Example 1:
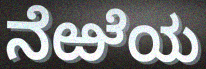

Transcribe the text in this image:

ನೆಱೆಯ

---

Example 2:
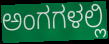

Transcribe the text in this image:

ಅಂಗಗಳಲ್ಲಿ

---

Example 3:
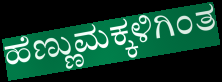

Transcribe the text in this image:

ಹೆಣ್ಣುಮಕ್ಕಳಿಗಿಂತ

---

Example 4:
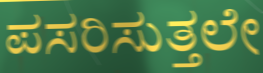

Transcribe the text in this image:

ಪಸರಿಸುತ್ತಲೇ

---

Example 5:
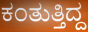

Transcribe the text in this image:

ಕಂತುತ್ತಿದ್ದ